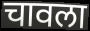
चावला